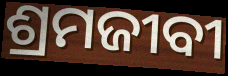
ଶ୍ରମଜୀବୀ